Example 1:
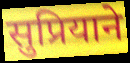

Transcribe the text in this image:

सुप्रियाने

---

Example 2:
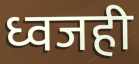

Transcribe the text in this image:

ध्वजही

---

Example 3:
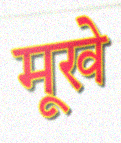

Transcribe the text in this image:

मूखे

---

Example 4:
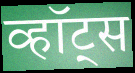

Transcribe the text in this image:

व्हॉट्‌स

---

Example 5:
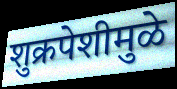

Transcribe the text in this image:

शुक्रपेशीमुळे